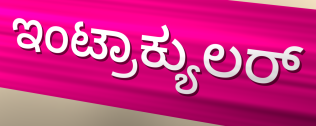
ಇಂಟ್ರಾಕ್ಯುಲರ್